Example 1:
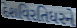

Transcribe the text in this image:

દેશવિરતિધરને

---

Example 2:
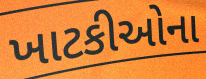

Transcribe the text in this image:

ખાટકીઓના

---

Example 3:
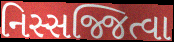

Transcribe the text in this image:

નિસ્સજ્જિત્વા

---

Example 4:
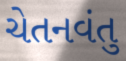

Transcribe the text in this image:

ચેતનવંતુ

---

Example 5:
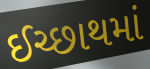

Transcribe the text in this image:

ઈચ્છાથમાં